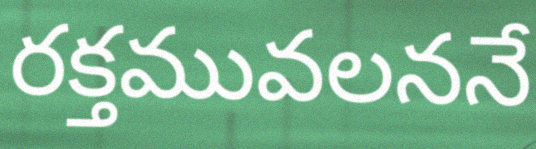
రక్తమువలననే